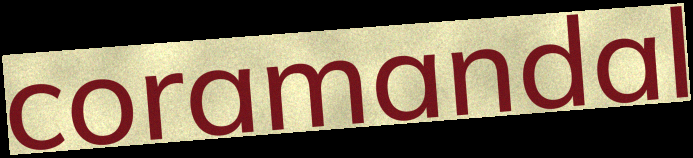
coramandal